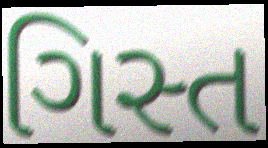
ગિસ્ત